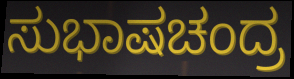
ಸುಭಾಷಚಂದ್ರ